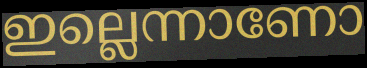
ഇല്ലെന്നാണോ